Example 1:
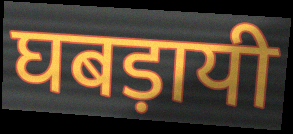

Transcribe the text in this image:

घबड़ायी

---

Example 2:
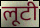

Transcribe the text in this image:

लूटी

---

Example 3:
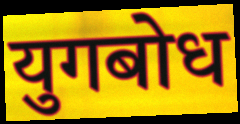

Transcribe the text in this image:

युगबोध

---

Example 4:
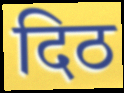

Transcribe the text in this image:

दिठ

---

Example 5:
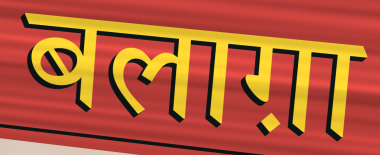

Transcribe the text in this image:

बलाग़ा